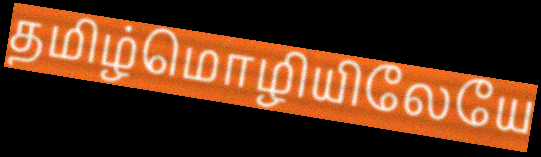
தமிழ்மொழியிலேயே